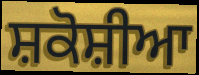
ਸ਼ਕੋਸ਼ੀਆ